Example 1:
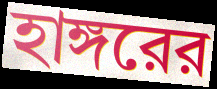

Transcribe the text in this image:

হাঙ্গরের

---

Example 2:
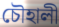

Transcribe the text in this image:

চৌহালী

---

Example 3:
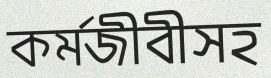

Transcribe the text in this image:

কর্মজীবীসহ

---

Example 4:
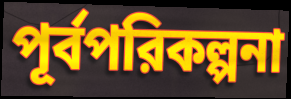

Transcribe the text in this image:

পূর্বপরিকল্পনা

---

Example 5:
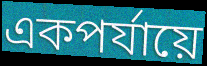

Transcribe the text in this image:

একপর্যায়ে